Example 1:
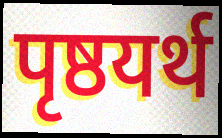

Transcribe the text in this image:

पृष्ठयर्थ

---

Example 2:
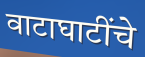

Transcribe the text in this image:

वाटाघाटींचे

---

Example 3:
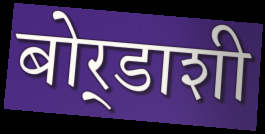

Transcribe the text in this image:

बोर्डाशी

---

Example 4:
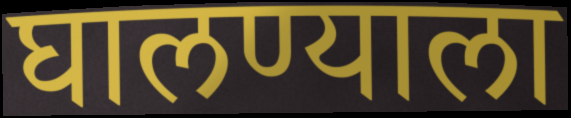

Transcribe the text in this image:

घालण्याला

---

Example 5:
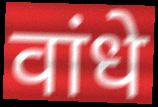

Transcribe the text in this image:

वांधे